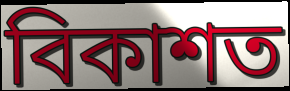
বিকাশত